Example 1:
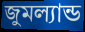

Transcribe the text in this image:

জুমল্যান্ড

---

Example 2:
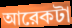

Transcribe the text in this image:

আরেকটা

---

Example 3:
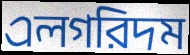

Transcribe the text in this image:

এলগরিদম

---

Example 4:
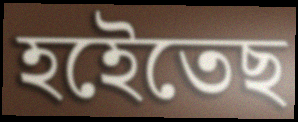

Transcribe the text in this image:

হইেতেছ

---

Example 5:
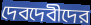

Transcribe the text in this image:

দেবদেবীদের